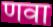
णवा